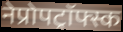
नेप्रोपट्रॉफ्स्क